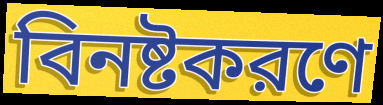
বিনষ্টকরণে